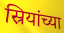
स्रियांच्या